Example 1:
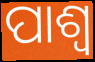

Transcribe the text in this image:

ପାଶ୍ୱ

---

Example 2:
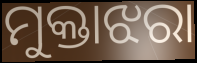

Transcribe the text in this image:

ମୁକ୍ତାଝରା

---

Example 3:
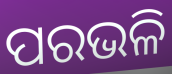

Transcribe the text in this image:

ପରଭଳି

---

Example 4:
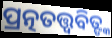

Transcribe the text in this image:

ପ୍ରତ୍ନତତ୍ତ୍ୱବିତ୍ଙ୍କ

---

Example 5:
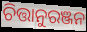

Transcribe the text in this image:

ଚିତ୍ତାନୁରଞ୍ଜନ